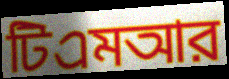
টিএমআর